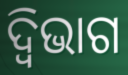
ଦ୍ୱିଭାଗ